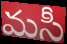
మసీ